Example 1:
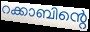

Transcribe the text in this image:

റക്കാബിന്റെ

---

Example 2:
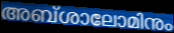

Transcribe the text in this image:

അബ്ശാലോമിനും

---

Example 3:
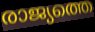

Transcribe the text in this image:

രാജ്യത്തെ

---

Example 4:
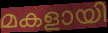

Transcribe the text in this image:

മകളായി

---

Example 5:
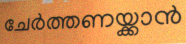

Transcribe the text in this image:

ചേർത്തണയ്ക്കാൻ